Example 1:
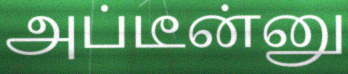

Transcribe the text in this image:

அப்டீன்னு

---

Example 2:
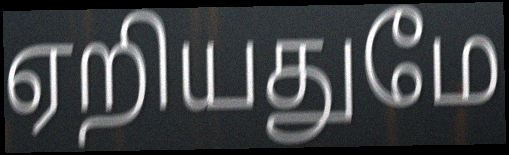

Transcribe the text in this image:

ஏறியதுமே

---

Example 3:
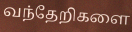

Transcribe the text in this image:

வந்தேறிகளை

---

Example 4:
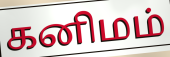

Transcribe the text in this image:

கனிமம்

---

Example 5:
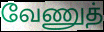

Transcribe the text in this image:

வேணுத்